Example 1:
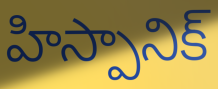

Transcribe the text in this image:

హిస్పానిక్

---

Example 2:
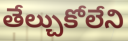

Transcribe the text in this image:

తేల్చుకోలేని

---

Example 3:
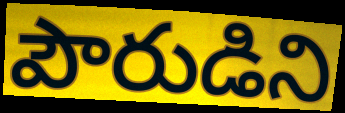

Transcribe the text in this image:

పౌరుడిని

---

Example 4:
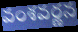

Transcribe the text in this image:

వంశవర్ణన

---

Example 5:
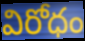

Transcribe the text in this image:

విరోధం